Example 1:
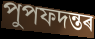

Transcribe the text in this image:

পুপফদন্তৰ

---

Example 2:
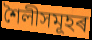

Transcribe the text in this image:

শৈলীসমূহৰ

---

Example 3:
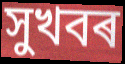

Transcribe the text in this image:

সুখবৰ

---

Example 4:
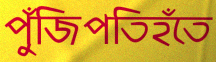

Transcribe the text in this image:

পুঁজিপতিহঁতে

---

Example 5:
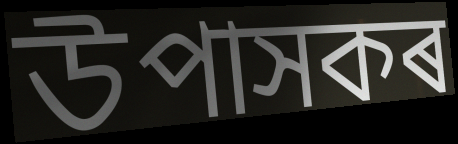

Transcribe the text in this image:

উপাসকৰ